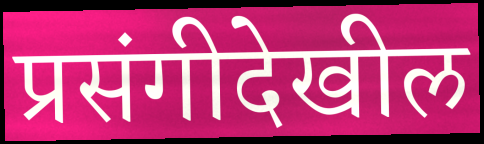
प्रसंगीदेखील